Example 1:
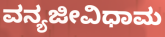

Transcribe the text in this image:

ವನ್ಯಜೀವಿಧಾಮ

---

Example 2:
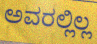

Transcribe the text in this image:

ಅವರಲ್ಲಿಲ್ಲ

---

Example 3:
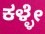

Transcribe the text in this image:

ಕಳ್ಳೇ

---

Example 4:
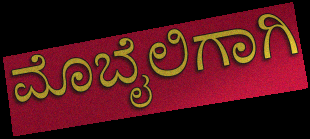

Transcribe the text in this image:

ಮೊಬೈಲಿಗಾಗಿ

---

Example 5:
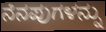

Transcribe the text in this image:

ನೆನಪುಗಳನ್ನು